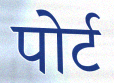
पोर्ट